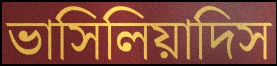
ভাসিলিয়াদিস